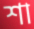
শা